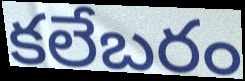
కలేబరం